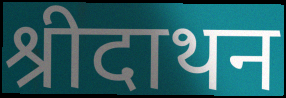
श्रीदाथन